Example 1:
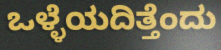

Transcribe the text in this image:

ಒಳ್ಳೆಯದಿತ್ತೆಂದು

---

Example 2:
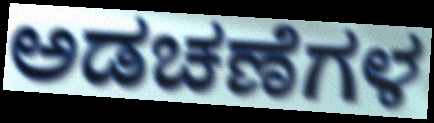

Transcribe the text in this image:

ಅಡಚಣೆಗಳ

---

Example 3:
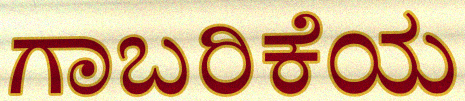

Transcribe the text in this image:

ಗಾಬರಿಕೆಯ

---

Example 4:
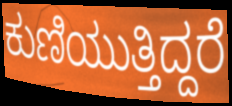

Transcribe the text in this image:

ಕುಣಿಯುತ್ತಿದ್ದರೆ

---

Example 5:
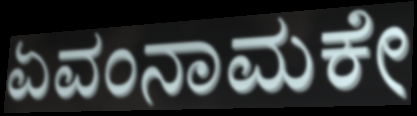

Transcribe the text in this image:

ಏವಂನಾಮಕೇ